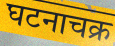
घटनाचक्र